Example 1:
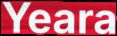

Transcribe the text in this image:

Yeara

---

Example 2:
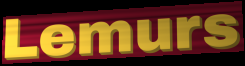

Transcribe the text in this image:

Lemurs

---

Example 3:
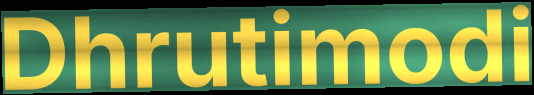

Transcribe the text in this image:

Dhrutimodi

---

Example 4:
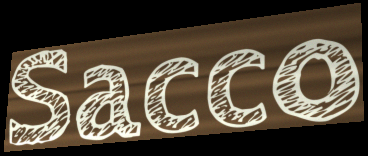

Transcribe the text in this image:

Sacco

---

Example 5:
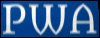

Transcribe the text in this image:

PWA